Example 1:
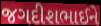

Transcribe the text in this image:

જગદીશભાઈને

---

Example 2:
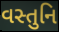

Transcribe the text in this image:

વસ્તુનિ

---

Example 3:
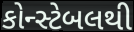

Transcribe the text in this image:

કોન્સ્ટેબલથી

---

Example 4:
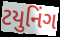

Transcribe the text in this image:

ટયુનિંગ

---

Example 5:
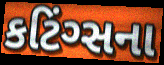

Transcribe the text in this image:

કટિંગ્સના